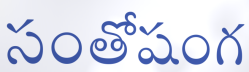
సంతోషంగ